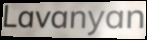
Lavanyan